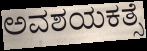
ಅವಶಯಕತ್ಸೆ